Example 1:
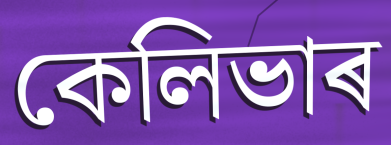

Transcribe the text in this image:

কেলিভাৰ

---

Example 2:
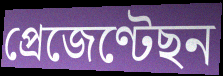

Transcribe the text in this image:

প্ৰেজেণ্টেছন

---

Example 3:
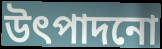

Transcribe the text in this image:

উৎপাদনো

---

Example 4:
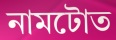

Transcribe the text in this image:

নামটোত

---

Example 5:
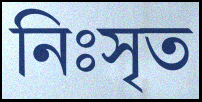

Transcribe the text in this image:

নিঃসৃত